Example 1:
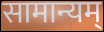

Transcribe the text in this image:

सामान्यम्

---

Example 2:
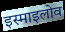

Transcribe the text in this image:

इस्माइलोव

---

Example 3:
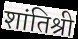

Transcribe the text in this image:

शांतिश्री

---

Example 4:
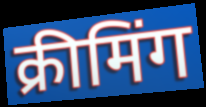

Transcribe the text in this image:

क्रीमिंग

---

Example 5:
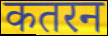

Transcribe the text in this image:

कतरन